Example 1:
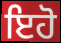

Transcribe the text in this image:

ਇਹੋ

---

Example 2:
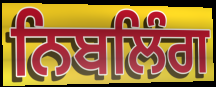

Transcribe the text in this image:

ਨਿਬਲਿੰਗ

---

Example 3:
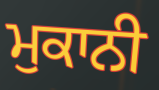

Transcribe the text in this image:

ਮੁਕਾਨੀ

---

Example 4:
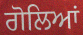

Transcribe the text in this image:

ਗੋਲਿਆਂ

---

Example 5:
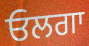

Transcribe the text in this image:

ਓਲਗਾ